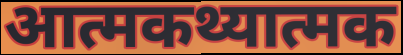
आत्मकथ्यात्मक